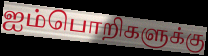
ஐம்பொறிகளுக்கு